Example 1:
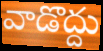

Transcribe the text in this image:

వాడొద్దు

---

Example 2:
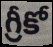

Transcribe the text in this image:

గ్రీకో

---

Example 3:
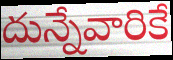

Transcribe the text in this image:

దున్నేవారికే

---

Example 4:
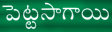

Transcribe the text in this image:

పెట్టసాగాయి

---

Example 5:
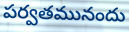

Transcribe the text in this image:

పర్వతమునందు